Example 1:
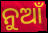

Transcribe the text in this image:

ନୁଆଁ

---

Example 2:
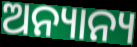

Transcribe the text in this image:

ଅନ୍ୟାନ୍ୟ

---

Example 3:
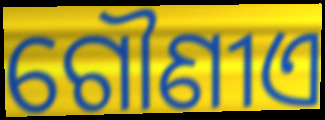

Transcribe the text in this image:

ଗୌଣୀଏ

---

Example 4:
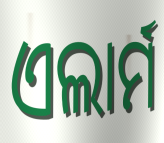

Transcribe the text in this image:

ଏଲାର୍ମ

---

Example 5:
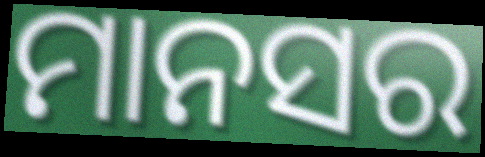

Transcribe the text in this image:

ମାନସର